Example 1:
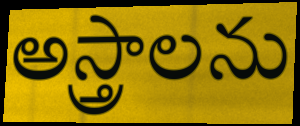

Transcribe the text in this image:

అస్త్రాలను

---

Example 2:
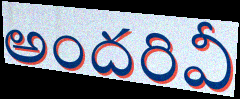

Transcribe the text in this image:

అందరివీ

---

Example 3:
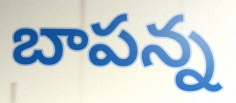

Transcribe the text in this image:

బాపన్న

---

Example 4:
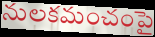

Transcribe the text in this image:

నులకమంచంపై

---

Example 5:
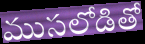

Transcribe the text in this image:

ముసలోడితో